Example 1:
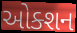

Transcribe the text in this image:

ઓક્શન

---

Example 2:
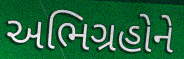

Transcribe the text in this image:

અભિગ્રહોને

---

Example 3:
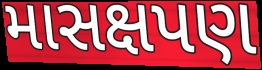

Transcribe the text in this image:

માસક્ષપણ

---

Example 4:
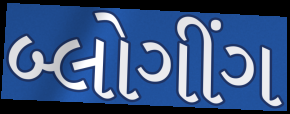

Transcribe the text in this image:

બ્લોગીંગ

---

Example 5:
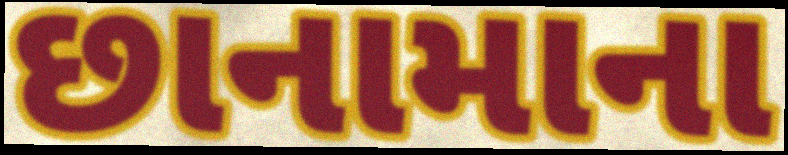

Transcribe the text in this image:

છાનામાના